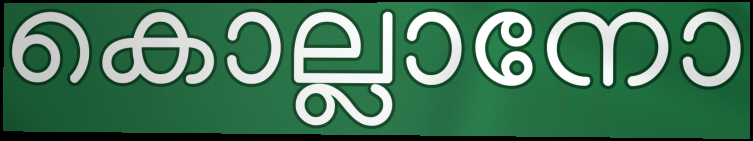
കൊല്ലാനോ